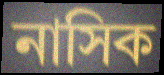
নাসিক